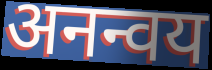
अनन्वय